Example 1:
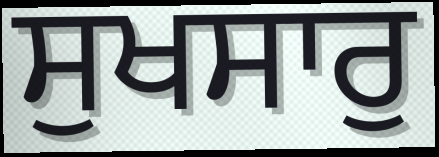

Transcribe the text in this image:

ਸੁਖਸਾਰੁ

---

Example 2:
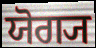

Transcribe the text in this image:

ਯੋਗ੍ਯ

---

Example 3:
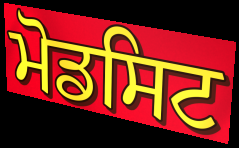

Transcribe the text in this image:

ਮੋਡਸਿਟ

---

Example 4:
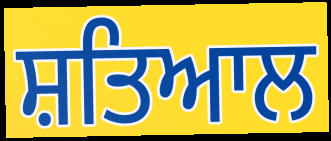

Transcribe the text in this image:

ਸ਼ਤਿਆਲ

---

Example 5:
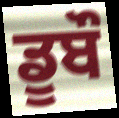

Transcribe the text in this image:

ਡੂਬੌ